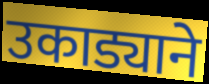
उकाड्याने